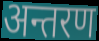
अन्तरण